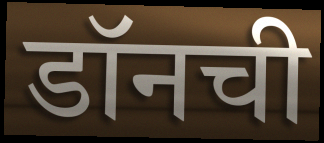
डॉनची